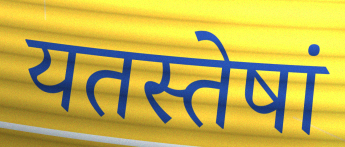
यतस्तेषां